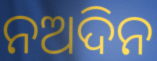
ନଅଦିନ